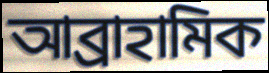
আব্রাহামিক